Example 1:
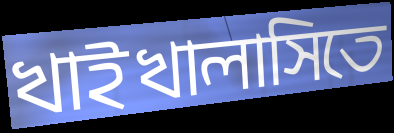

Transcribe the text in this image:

খাইখালাসিতে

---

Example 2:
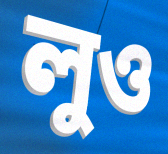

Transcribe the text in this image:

লুও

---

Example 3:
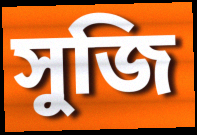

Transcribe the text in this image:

সুজি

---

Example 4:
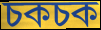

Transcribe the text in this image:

চকচক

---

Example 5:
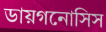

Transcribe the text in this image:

ডায়গনোসিস